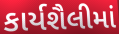
કાર્યશૈલીમાં